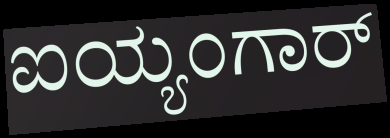
ಐಯ್ಯಂಗಾರ್